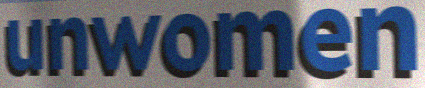
unwomen